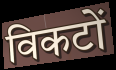
विकटों